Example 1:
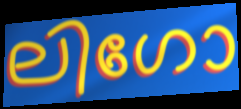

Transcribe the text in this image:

ലിഗോ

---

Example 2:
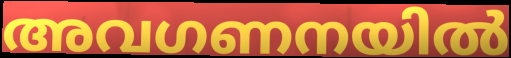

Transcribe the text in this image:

അവഗണനയിൽ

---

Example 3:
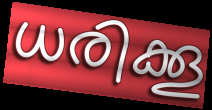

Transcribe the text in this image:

ധരിക്കൂ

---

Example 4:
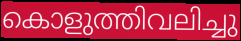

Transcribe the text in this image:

കൊളുത്തിവലിച്ചു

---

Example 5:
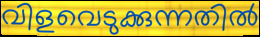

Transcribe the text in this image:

വിളവെടുക്കുന്നതിൽ